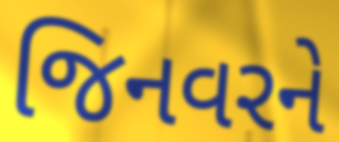
જિનવરને